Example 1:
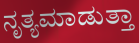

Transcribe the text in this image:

ನೃತ್ಯಮಾಡುತ್ತಾ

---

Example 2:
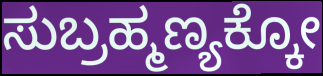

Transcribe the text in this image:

ಸುಬ್ರಹ್ಮಣ್ಯಕ್ಕೋ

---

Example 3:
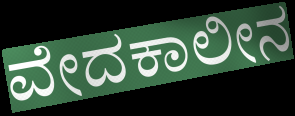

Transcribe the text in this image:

ವೇದಕಾಲೀನ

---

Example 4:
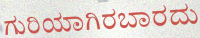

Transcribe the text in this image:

ಗುರಿಯಾಗಿರಬಾರದು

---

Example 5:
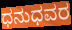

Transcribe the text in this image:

ಧನುಧವರ